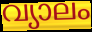
വ്യാലം